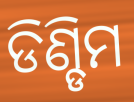
ଡିଣ୍ଡିମ